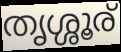
തൃശ്ശൂര്